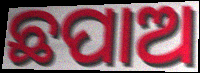
ଛପାଅ